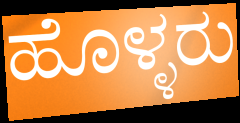
ಹೊಳ್ಳರು